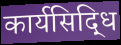
कार्यसिद्धि